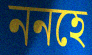
ননহে